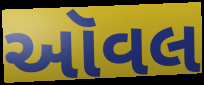
ઑવલ